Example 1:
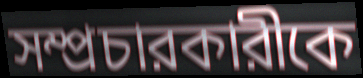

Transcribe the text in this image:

সম্প্রচারকারীকে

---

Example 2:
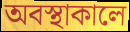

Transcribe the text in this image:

অবস্থাকালে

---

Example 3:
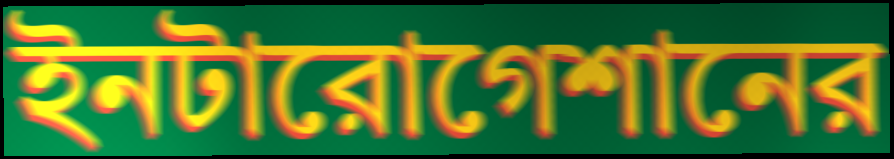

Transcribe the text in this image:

ইনটারোগেশানের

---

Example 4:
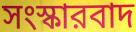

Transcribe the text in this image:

সংস্কারবাদ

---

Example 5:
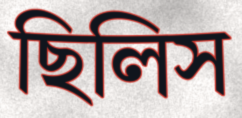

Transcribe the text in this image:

ছিলিস